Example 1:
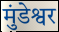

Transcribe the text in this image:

मुंडेश्वर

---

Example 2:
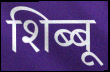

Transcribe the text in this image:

शिब्बू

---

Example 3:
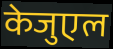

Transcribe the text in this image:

केजुएल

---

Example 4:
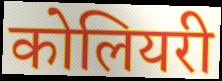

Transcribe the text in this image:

कोलियरी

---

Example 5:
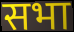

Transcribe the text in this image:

सभा